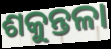
ଶକୁନ୍ତଳା